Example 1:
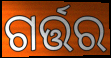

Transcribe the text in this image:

ଗର୍ତ୍ତର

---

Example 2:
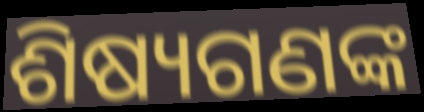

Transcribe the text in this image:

ଶିଷ୍ୟଗଣଙ୍କ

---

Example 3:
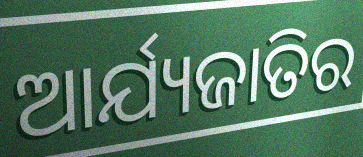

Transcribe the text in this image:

ଆର୍ଯ୍ୟଜାତିର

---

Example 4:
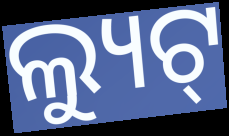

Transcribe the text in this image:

ଲ୍ୟୁଟ୍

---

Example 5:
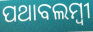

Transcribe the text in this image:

ପଥାବଲମ୍ବୀ